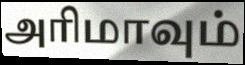
அரிமாவும்